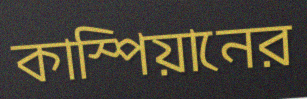
কাস্পিয়ানের